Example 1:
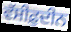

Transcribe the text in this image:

ਵੱਸੀਫ਼ੁਦੀਨ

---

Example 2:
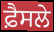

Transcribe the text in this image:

ਫ਼ੈਸਲੇ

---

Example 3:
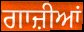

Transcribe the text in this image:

ਗਾਜ਼ੀਆਂ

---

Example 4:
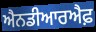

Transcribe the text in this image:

ਐਨਡੀਆਰਐਫ਼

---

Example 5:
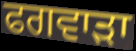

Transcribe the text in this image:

ਫਗਵਾੜਾ